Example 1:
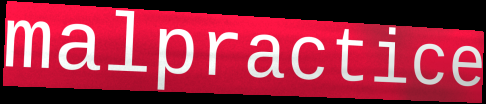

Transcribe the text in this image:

malpractice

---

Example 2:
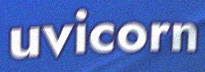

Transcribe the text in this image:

uvicorn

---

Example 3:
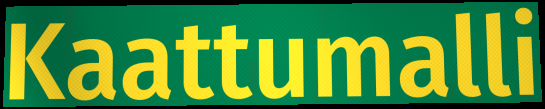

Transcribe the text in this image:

Kaattumalli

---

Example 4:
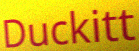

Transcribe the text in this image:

Duckitt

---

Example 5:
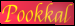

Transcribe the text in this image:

Pookkal